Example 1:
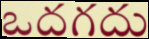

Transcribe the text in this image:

ఒదగదు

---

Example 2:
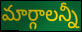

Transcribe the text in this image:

మార్గాలన్నీ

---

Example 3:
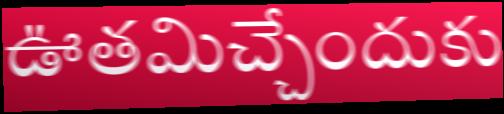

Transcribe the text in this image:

ఊతమిచ్చేందుకు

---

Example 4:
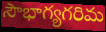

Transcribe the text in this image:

సౌభాగ్యగరిమ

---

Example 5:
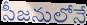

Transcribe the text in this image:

సీజనులోనే